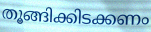
തൂങ്ങിക്കിടക്കണം